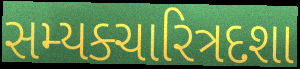
સમ્યક્ચારિત્રદશા